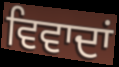
ਵਿਵਾਦਾਂ